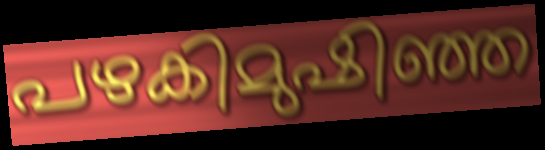
പഴകിമുഷിഞ്ഞ